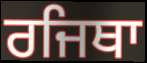
ਰਜਿਥਾ